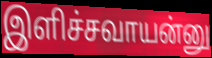
இளிச்சவாயன்னு